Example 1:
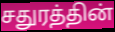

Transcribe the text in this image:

சதுரத்தின்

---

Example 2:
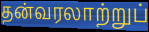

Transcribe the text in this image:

தன்வரலாற்றுப்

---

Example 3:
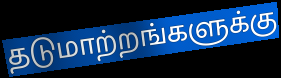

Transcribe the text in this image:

தடுமாற்றங்களுக்கு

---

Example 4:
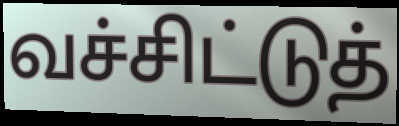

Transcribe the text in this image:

வச்சிட்டுத்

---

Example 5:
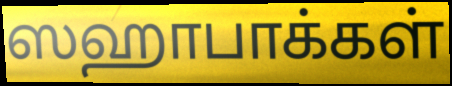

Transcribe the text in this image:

ஸஹாபாக்கள்